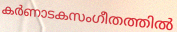
കർണാടകസംഗീതത്തിൽ